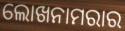
ଲୋଖନାମରାର